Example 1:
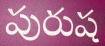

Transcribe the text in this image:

పురుష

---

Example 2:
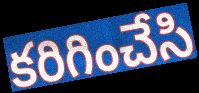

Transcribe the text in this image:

కరిగించేసి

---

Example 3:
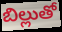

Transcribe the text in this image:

బిల్లుతో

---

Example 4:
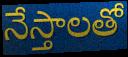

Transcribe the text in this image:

నేస్తాలతో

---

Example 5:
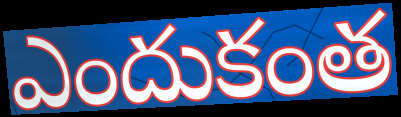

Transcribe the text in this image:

ఎందుకంత